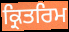
ਕ੍ਰਿਤਰਿਮ